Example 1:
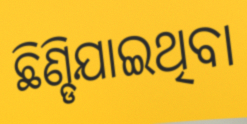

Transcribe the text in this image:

ଛିଣ୍ଡିଯାଇଥିବା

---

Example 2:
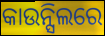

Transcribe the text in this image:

କାଉନ୍ସିଲରେ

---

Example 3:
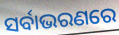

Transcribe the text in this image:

ସର୍ବାଭରଣରେ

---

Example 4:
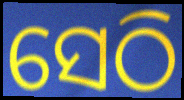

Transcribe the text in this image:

ସେଠି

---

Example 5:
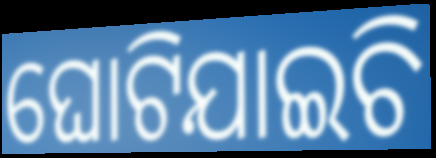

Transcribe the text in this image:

ଘୋଟିଯାଇଚି